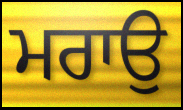
ਮਰਾਉ